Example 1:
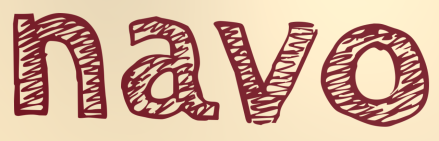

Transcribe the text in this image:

navo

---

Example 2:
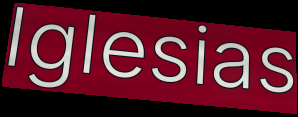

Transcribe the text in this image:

Iglesias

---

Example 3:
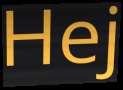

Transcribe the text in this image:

Hej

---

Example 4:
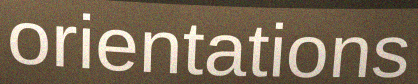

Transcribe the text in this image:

orientations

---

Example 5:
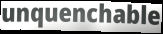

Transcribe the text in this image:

unquenchable